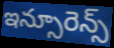
ఇన్సూరెన్స్